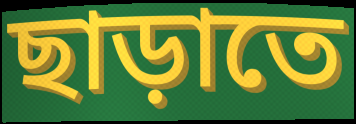
ছাড়াতে